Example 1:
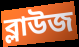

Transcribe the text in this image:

ব্লাউজ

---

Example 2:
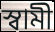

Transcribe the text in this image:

স্বামী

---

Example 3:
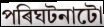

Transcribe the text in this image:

পৰিঘটনাটো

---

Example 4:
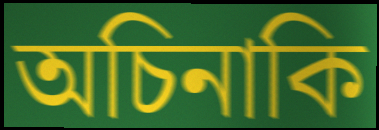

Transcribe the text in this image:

অচিনাকি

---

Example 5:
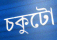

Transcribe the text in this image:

চকুটো